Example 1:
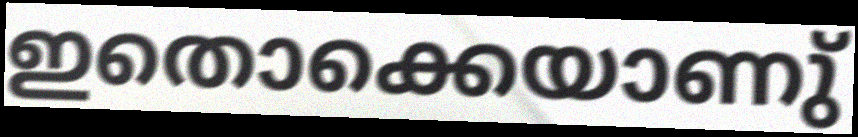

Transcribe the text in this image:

ഇതൊക്കെയാണു്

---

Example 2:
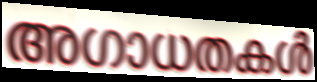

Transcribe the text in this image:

അഗാധതകൾ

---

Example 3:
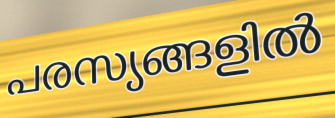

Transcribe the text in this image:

പരസ്യങ്ങളിൽ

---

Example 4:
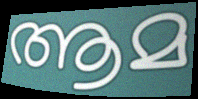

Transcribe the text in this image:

ആമ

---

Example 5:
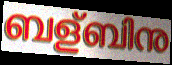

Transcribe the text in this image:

ബള്ബിനു